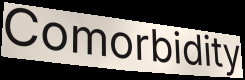
Comorbidity